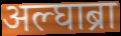
अल्घाब्रा